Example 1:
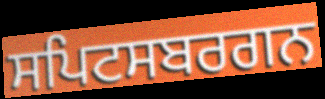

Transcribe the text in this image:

ਸਪਿਟਸਬਰਗਨ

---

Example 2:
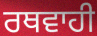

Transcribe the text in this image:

ਰਥਵਾਹੀ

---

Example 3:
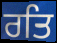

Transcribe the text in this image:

ਰਤਿ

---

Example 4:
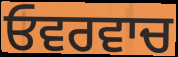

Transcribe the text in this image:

ਓਵਰਵਾਚ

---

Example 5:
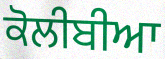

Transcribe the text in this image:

ਕੋਲੀਬੀਆ